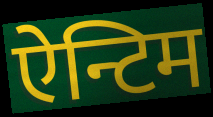
ऐन्टिम